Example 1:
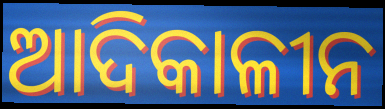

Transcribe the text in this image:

ଆଦିକାଳୀନ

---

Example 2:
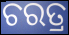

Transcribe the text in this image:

ଚରତ୍ର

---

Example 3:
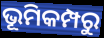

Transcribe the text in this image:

ଭୂମିକମ୍ପରୁ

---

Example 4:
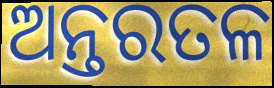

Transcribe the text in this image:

ଅନ୍ତରତଳ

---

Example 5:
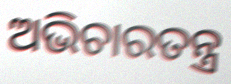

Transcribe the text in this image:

ଅଭିଚାରତନ୍ତ୍ର